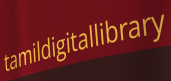
tamildigitallibrary